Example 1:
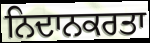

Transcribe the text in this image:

ਨਿਦਾਨਕਰਤਾ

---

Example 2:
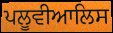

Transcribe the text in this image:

ਪਲੂਵੀਆਲਿਸ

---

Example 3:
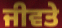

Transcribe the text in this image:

ਜੀਵਤੇ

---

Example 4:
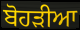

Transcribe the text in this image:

ਬੋਹੜੀਆ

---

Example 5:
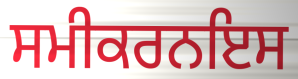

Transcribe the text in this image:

ਸਮੀਕਰਨਇਸ